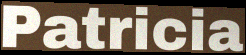
Patricia